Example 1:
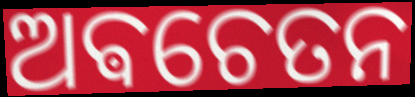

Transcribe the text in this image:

ଅଵଚେତନ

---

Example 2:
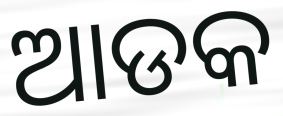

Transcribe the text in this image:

ଆଡକ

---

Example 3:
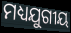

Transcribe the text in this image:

ମଧ୍ଯଯୁଗୀୟ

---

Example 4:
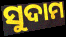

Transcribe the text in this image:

ସୁଦାମ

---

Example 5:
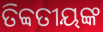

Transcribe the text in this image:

ତିବ୍ବତୀୟଙ୍କ